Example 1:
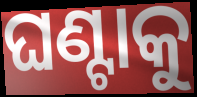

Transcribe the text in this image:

ଘଣ୍ଟାକୁ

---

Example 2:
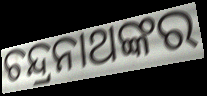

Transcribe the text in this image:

ଚନ୍ଦ୍ରନାଥଙ୍କର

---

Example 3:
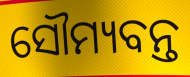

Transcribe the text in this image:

ସୌମ୍ୟବନ୍ତ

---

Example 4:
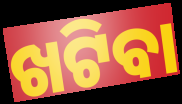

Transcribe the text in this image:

ଖଟିବା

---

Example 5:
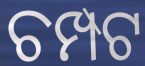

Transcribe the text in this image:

ଚମ୍ପଟ